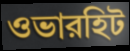
ওভারহিট